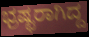
ಭ್ರಷ್ಟರಾಗಿದ್ದ